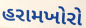
હરામખોરો